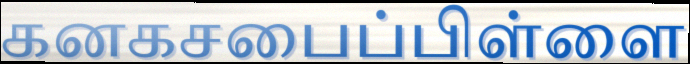
கனகசபைப்பிள்ளை